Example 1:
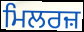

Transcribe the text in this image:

ਮਿਲਰਜ਼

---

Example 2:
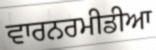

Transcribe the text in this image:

ਵਾਰਨਰਮੀਡੀਆ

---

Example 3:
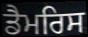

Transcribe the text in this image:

ਡੈਮਰਿਸ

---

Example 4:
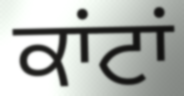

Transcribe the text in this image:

ਕਾਂਟਾਂ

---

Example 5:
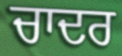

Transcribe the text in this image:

ਚਾਦਰ